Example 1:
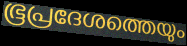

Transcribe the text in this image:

ഭൂപ്രദേശത്തെയും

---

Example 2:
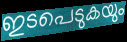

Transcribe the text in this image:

ഇടപെടുകയും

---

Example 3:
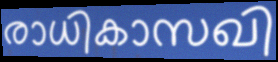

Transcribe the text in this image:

രാധികാസഖി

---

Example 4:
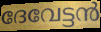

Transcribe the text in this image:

ദേവേട്ടൻ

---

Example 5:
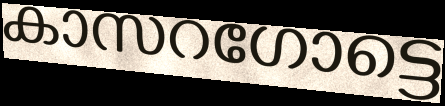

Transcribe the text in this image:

കാസറഗോട്ടെ